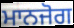
ਮਾਨਜੋਗ